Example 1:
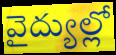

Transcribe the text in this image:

వైద్యుల్లో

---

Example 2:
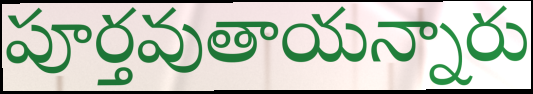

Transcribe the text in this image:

పూర్తవుతాయన్నారు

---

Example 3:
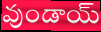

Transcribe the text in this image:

వుండాయ్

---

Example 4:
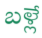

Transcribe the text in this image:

బళ్లే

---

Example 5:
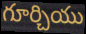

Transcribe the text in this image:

గూర్చియు